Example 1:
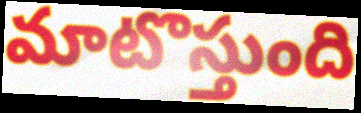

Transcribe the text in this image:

మాటొస్తుంది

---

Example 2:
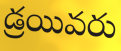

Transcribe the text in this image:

డ్రయివరు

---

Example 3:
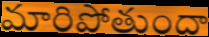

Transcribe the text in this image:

మారిపోతుందా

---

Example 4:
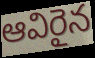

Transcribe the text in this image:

ఆవిరైన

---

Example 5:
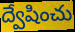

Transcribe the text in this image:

ద్వేషించు